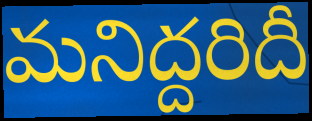
మనిద్దరిదీ